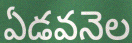
ఏడవనెల